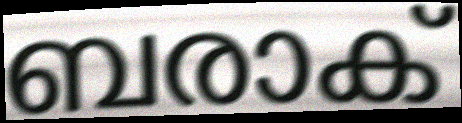
ബരാക്